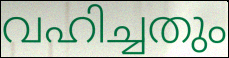
വഹിച്ചതും